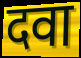
दवा